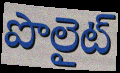
పొలైట్